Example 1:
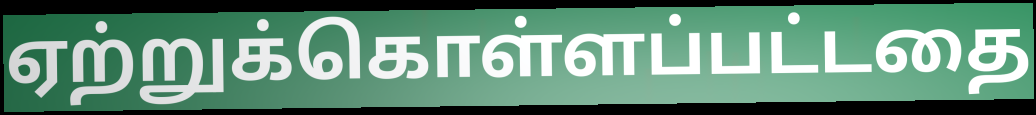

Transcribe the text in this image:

ஏற்றுக்கொள்ளப்பட்டதை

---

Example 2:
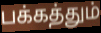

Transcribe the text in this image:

பக்கத்தும்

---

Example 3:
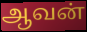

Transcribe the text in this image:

ஆவன்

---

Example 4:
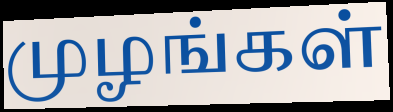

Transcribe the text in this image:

முழங்கள்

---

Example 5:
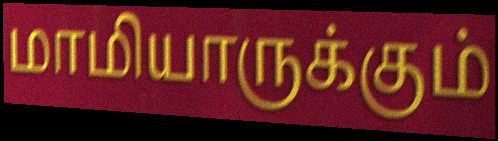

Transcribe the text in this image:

மாமியாருக்கும்